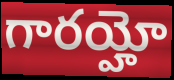
గారయ్హో